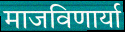
माजविणार्या